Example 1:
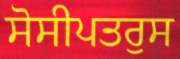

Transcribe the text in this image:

ਸੋਸੀਪਤਰੁਸ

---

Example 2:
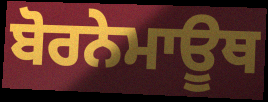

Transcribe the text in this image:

ਬੋਰਨੇਮਾਊਥ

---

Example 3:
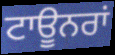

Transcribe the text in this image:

ਟਾਊਨਰਾਂ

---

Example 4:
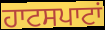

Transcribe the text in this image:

ਹਾਟਸਪਾਟਾਂ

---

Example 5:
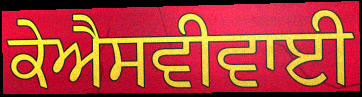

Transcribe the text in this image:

ਕੇਐਸਵੀਵਾਈ